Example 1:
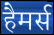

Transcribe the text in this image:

हैमर्स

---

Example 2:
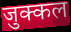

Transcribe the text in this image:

जुक्कल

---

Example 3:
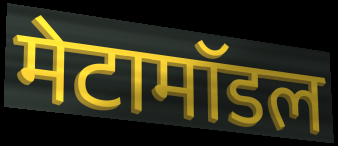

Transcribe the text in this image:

मेटामॉडल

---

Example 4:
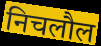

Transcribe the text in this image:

निचलौल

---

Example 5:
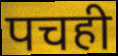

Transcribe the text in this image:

पचही